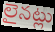
లైనట్లు